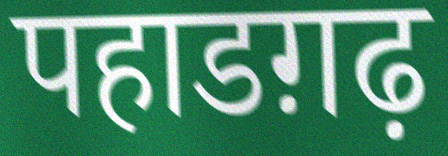
पहाडग़ढ़